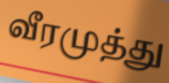
வீரமுத்து